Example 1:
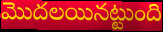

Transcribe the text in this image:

మొదలయినట్టుంది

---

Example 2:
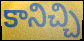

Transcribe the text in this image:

కానిచ్చి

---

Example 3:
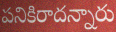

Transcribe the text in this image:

పనికిరాదన్నారు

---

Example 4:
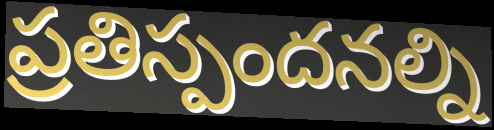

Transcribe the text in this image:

ప్రతిస్పందనల్ని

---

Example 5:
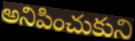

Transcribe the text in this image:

అనిపించుకుని